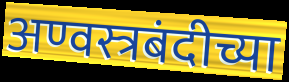
अण्वस्त्रबंदीच्या